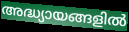
അദ്ധ്യായങ്ങളിൽ